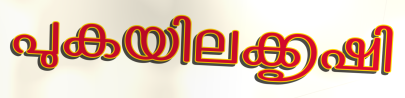
പുകയിലക്കൃഷി